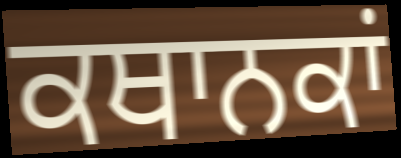
ਕਥਾਨਕਾਂ